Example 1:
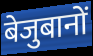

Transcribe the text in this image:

बेजुबानों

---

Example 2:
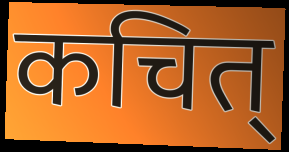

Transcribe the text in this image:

कचित्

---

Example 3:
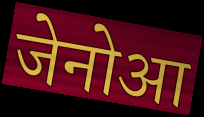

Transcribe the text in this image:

जेनोआ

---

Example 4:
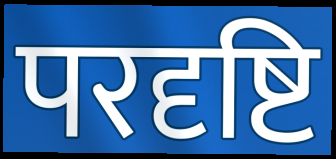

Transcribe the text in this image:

परदृष्टि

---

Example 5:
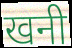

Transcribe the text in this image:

खनी